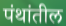
पंथांतील